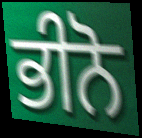
ਭੀਨੋ